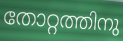
തോറ്റത്തിനു